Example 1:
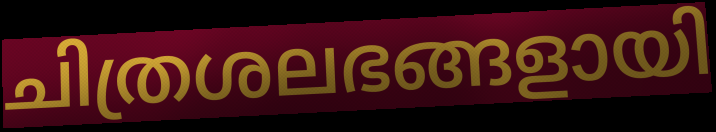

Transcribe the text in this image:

ചിത്രശലഭങ്ങളായി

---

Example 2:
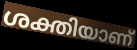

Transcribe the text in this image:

ശക്തിയാണ്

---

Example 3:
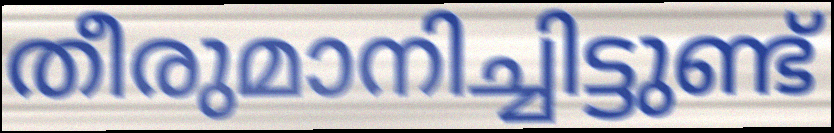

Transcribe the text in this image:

തീരുമാനിച്ചിട്ടുണ്ട്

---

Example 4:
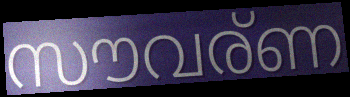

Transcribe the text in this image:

സൗവര്ണ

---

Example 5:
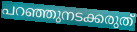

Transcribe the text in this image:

പറഞ്ഞുനടക്കരുത്